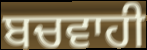
ਬਚਵਾਹੀ